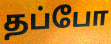
தப்போ